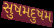
સુષમદુષમ